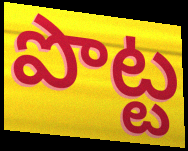
పొట్ట